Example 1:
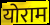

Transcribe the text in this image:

योराम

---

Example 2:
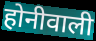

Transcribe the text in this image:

होनीवाली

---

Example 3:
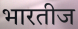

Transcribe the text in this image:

भारतीज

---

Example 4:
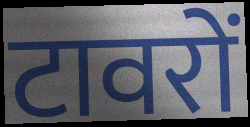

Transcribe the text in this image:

टावरों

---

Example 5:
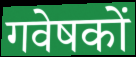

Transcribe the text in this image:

गवेषकों